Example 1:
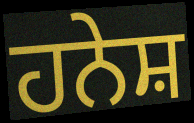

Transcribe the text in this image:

ਹਨੇਸ਼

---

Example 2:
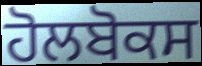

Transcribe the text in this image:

ਹੋਲਬੋਕਸ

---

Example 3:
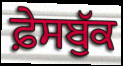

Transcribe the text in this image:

ਫ਼ੇਸਬੁੱਕ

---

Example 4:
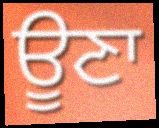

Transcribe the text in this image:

ਊਣਾ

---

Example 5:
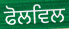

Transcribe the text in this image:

ਫੋਲਵਿਲ